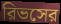
রিভসের